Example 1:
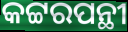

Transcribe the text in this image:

କଟ୍ଟରପନ୍ଥୀ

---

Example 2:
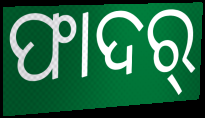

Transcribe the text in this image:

ଫାଦର୍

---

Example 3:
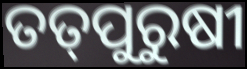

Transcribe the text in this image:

ତତ୍‌ପୁରୁଷୀ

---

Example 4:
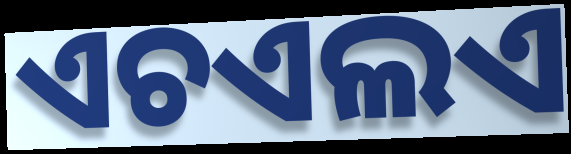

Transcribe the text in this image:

ଏଚଏଲଏ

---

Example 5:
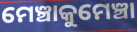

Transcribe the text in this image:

ମେଞ୍ଚାକୁମେଞ୍ଚା